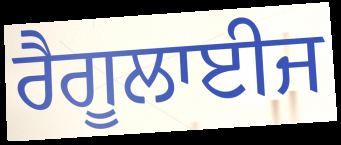
ਰੈਗੂਲਾਈਜ